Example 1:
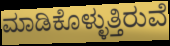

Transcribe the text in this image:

ಮಾಡಿಕೊಳ್ಳುತ್ತಿರುವೆ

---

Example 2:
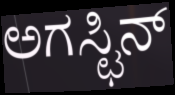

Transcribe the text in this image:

ಅಗಸ್ಟಿನ್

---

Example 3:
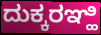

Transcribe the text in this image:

ದುಕ್ಕರಞ್ಹಿ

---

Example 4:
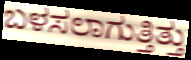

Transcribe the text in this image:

ಬಳಸಲಾಗುತ್ತಿತ್ತು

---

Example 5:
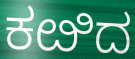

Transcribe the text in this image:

ಕೞಿದ